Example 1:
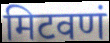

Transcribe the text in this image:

मिटवणं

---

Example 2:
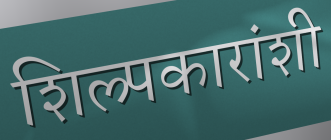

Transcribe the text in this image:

शिल्पकारांशी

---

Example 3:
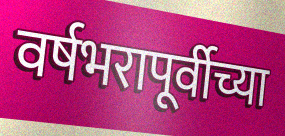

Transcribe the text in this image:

वर्षभरापूर्वीच्या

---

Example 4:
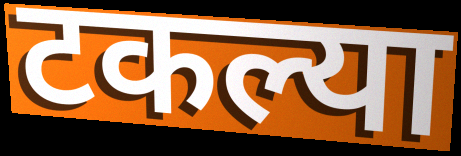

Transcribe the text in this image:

टकल्या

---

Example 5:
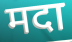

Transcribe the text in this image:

मदा